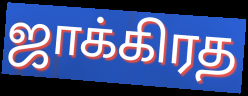
ஜாக்கிரத